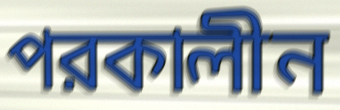
পরকালীন